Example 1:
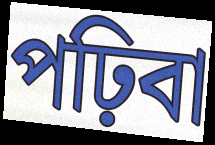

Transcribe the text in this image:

পঢ়িবা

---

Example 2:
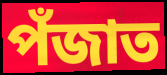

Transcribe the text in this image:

পঁজাত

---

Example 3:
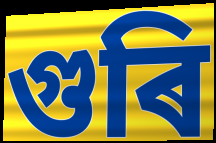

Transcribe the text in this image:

গুৰি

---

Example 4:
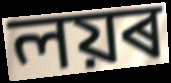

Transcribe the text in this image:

লয়ৰ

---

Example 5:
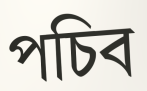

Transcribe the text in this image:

পচিব